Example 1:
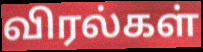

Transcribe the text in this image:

விரல்கள்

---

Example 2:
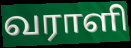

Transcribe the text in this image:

வராளி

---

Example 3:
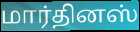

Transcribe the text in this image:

மார்தினஸ்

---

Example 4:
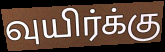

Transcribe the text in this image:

வுயிர்க்கு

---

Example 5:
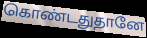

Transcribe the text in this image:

கொண்டதுதானே